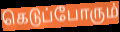
கெடுப்போரும்